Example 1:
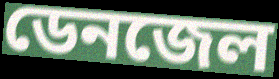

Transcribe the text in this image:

ডেনজেল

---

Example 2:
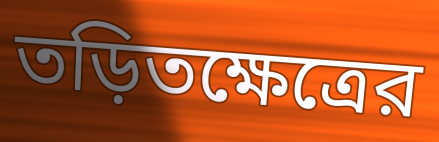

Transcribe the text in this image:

তড়িতক্ষেত্রের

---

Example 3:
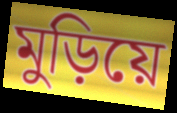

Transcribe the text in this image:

মুড়িয়ে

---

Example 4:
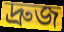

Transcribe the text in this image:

দ্রুজ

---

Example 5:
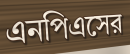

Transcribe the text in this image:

এনপিএসের